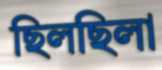
ছিলছিলা